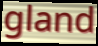
gland